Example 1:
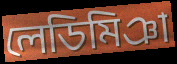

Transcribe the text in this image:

লেডিমিঞা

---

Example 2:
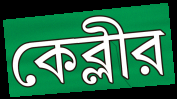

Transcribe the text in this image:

কেব্লীর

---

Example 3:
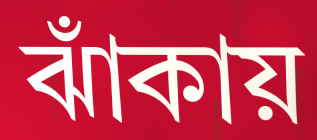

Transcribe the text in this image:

ঝাঁকায়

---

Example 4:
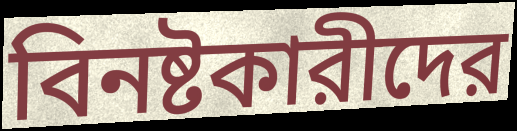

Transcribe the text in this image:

বিনষ্টকারীদের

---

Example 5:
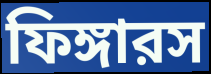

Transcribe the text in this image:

ফিঙ্গারস